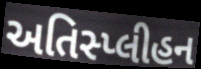
અતિસ્પ્લીહન